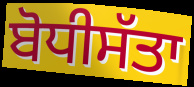
ਬੋਧੀਸੱਤਾ